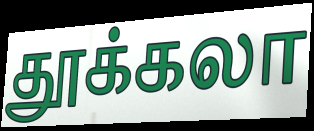
தூக்கலா